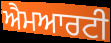
ਐਮਆਰਟੀ